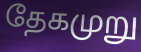
தேகமுறு